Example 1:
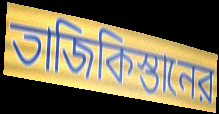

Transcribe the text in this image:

তাজিকিস্তানের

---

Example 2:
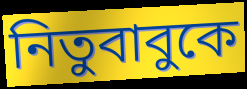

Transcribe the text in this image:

নিতুবাবুকে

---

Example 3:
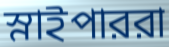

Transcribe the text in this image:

স্নাইপাররা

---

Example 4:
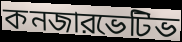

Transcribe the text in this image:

কনজারভেটিভ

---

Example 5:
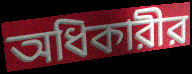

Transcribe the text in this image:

অধিকারীর